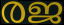
രജ